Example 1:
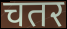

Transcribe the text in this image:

चतर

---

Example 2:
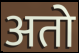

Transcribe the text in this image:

अतो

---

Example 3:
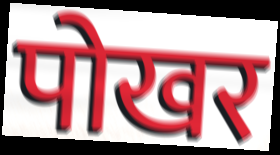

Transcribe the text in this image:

पोखर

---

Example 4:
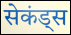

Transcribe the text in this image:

सेकंड्स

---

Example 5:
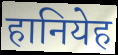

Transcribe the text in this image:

हानियेह